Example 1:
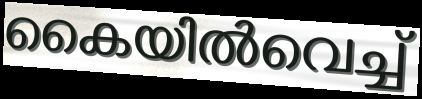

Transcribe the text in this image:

കൈയിൽവെച്ച്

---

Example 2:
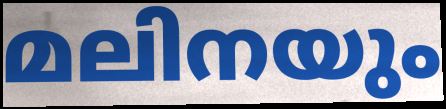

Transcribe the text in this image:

മലിനയും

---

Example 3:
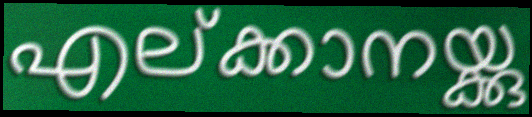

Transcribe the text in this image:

എല്ക്കാനയ്ക്കു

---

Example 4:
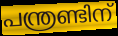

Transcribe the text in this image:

പന്ത്രണ്ടിന്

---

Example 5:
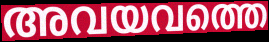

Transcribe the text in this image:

അവയവത്തെ